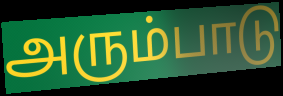
அரும்பாடு